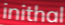
inithal